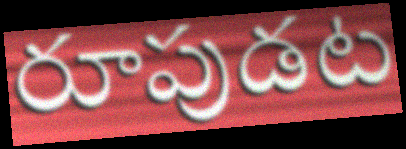
రూపుడట